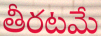
తీరటమే